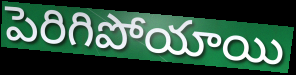
పెరిగిపోయాయి